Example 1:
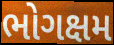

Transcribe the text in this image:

ભોગક્ષમ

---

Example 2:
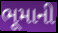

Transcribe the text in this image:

ભૂમાની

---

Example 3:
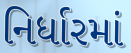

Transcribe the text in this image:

નિર્ધારમાં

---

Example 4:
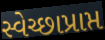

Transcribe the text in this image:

સ્વેચ્છાપ્રાપ્ત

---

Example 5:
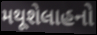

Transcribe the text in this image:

મથૂશેલાહનો